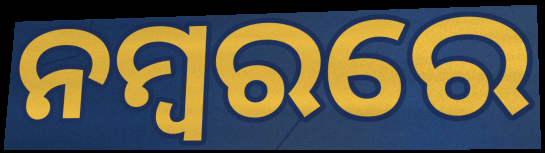
ନମ୍ବରରେ